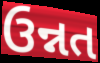
ઉન્નત